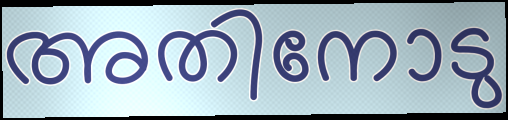
അതിനോടു